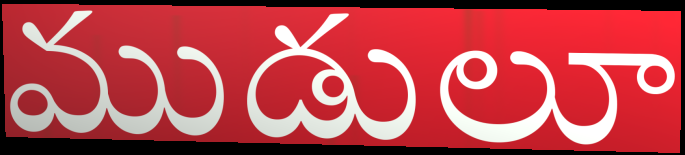
ముడులూ